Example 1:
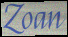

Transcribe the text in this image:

Zoan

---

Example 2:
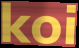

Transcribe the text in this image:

koi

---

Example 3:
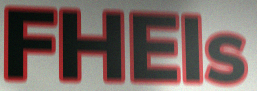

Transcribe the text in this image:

FHEIs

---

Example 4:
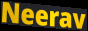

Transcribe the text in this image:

Neerav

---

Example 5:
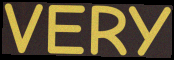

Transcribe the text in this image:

VERY